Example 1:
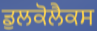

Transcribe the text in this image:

ਡੁਲਕੋਲੈਕਸ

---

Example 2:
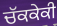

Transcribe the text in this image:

ਚੱਕਕੇਕੀ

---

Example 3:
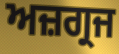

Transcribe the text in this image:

ਅਜ਼ਗ੍ਰਜ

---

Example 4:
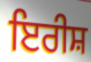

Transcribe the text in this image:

ਇਰੀਸ਼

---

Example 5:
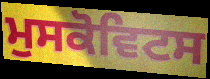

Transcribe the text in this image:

ਮੁਸਕੋਵਿਟਸ